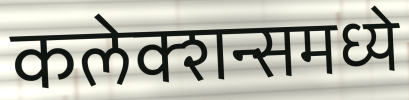
कलेक्शन्समध्ये